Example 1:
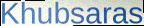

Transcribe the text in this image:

Khubsaras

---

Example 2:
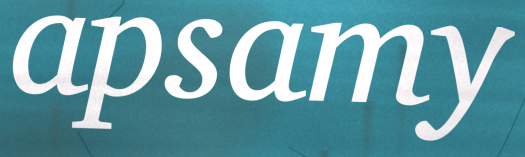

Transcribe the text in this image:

apsamy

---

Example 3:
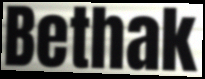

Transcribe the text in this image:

Bethak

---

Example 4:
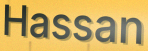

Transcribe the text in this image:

Hassan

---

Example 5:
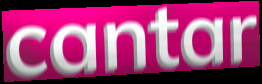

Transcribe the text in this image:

cantar